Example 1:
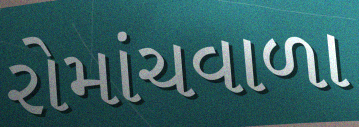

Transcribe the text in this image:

રોમાંચવાળા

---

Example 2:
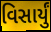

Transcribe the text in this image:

વિસાર્યું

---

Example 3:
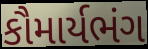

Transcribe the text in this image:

કૌમાર્યભંગ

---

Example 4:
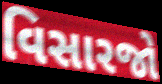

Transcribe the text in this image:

વિસારજો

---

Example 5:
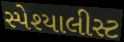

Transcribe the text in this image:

સ્પેશ્યાલીસ્ટ